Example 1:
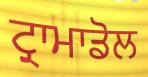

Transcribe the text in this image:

ਟ੍ਰਾਮਾਡੋਲ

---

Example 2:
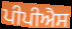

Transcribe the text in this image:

ਪੀਪੀਐਸ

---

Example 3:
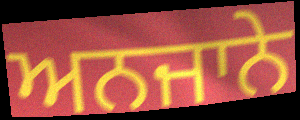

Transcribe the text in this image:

ਅਨਜਾਨੇ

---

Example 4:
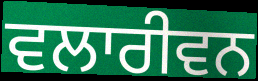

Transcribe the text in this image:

ਵਲਾਰੀਵਨ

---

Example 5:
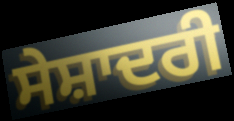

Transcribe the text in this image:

ਸੇਸ਼ਾਦਰੀ